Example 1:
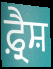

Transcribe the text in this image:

ਫ਼੍ਰੈਸ਼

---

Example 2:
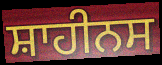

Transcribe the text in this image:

ਸ਼ਾਹੀਨਸ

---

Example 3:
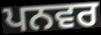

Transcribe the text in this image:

ਪਨਵਰ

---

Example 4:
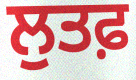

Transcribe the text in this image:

ਲੁਤਫ਼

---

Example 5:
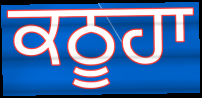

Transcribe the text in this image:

ਕਠੂਹਾ